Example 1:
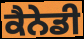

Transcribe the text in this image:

ਕੈਨੇਡੀ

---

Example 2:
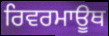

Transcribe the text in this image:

ਰਿਵਰਮਾਊਥ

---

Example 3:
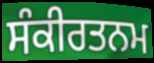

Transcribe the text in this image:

ਸੰਕੀਰਤਨਮ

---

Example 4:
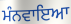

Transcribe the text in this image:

ਮੰਨਵਾਇਆ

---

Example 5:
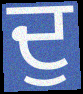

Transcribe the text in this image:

ਦੁ